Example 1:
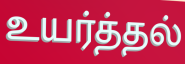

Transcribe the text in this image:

உயர்த்தல்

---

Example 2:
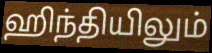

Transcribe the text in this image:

ஹிந்தியிலும்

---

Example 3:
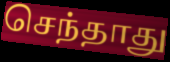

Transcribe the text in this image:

செந்தாது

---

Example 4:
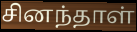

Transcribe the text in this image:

சினந்தாள்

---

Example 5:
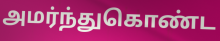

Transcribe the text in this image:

அமர்ந்துகொண்ட